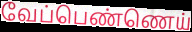
வேப்பெண்ணெய்